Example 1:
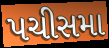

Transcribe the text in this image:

પચીસમા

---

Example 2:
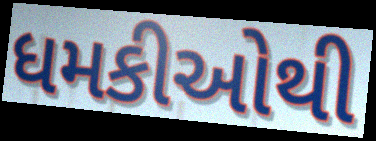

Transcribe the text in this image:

ધમકીઓથી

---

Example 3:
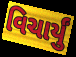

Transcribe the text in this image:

વિચાર્યું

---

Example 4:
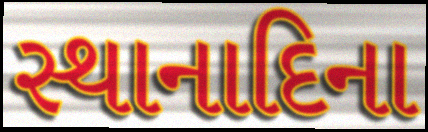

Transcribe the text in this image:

સ્થાનાદિના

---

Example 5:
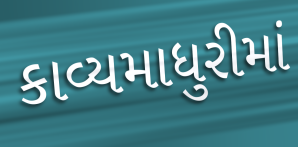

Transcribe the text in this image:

કાવ્યમાધુરીમાં